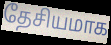
தேசியமாக